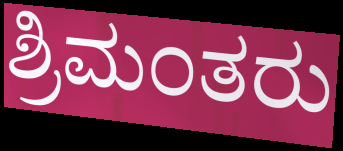
ಶ್ರಿಮಂತರು